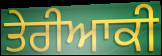
ਤੇਰੀਆਕੀ